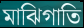
মাঝিগাতি